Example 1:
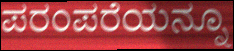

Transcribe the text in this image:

ಪರಂಪರೆಯನ್ನೂ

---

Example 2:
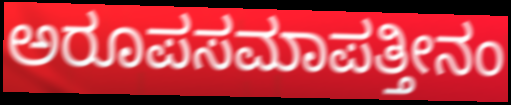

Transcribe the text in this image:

ಅರೂಪಸಮಾಪತ್ತೀನಂ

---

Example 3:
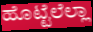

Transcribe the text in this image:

ಹೊಟ್ಟೆಲೆಲ್ಲಾ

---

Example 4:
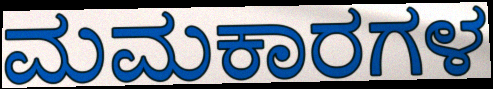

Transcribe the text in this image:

ಮಮಕಾರಗಳ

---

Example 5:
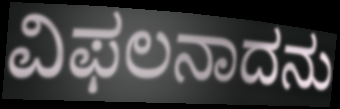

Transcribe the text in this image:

ವಿಫಲನಾದನು